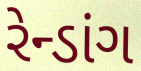
રેન્ડાંગ